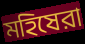
মহিষেরা